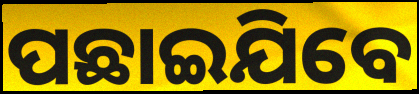
ପଛାଇଯିବେ